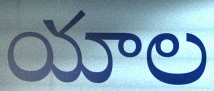
యాల